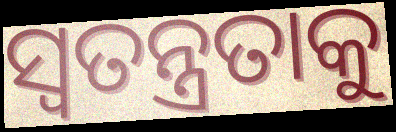
ସ୍ୱତନ୍ତ୍ରତାକୁ